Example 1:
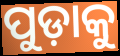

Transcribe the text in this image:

ପୁଡ଼ାକୁ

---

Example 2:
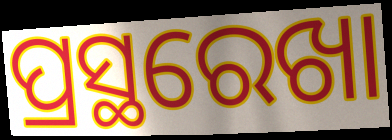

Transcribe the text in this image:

ପ୍ରସ୍ଥରେଖା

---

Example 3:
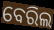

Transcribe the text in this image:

ବେରିଲ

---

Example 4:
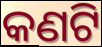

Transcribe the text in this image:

କଣଟି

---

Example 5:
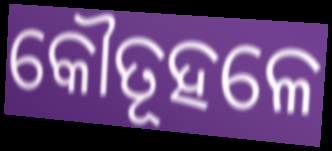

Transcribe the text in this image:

କୌତୂହଳେ